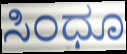
ಸಿಂಧೂ